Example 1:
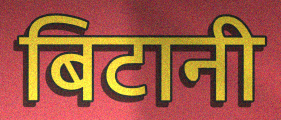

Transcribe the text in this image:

बिटानी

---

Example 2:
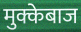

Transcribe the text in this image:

मुक्केबाज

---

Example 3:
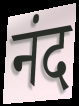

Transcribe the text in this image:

नंद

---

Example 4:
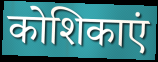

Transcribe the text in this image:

कोशिकाएं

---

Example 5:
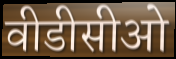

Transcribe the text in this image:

वीडीसीओ